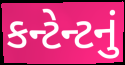
કન્ટેન્ટનું